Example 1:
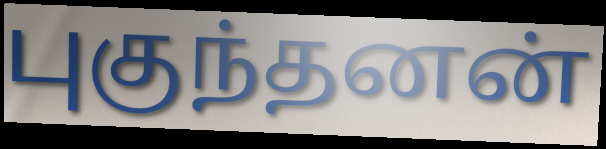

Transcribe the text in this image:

புகுந்தனன்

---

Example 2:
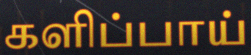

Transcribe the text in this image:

களிப்பாய்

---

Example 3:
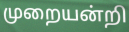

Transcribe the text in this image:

முறையன்றி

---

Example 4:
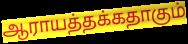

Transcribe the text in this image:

ஆராயத்தக்கதாகும்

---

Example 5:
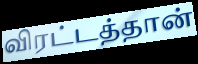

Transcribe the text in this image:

விரட்டத்தான்